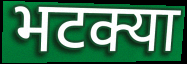
भटक्या